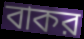
বাকর